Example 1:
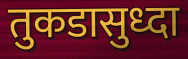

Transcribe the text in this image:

तुकडासुध्दा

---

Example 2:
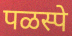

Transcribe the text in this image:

पळस्पे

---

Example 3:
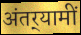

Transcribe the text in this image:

अंतर्यामीं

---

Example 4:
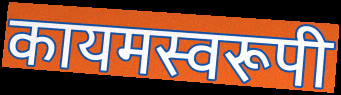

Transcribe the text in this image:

कायमस्वरूपी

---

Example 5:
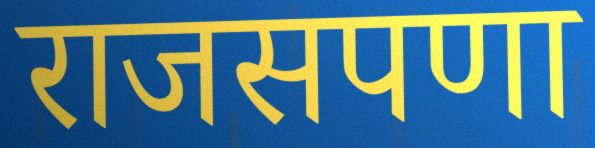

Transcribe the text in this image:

राजसपणा